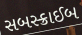
સબસ્ક્રાઈબ